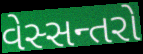
વેસ્સન્તરો